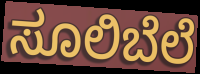
ಸೂಲಿಬೆಲೆ